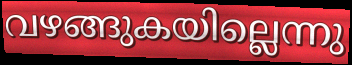
വഴങ്ങുകയില്ലെന്നു